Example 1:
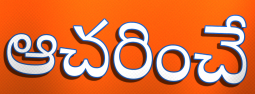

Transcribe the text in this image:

ఆచరించే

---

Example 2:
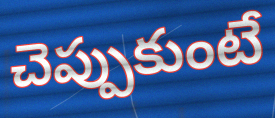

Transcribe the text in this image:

చెప్పుకుంటే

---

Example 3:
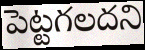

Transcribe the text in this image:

పెట్టగలదని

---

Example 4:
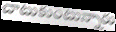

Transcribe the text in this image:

చాటుకుంటున్నారు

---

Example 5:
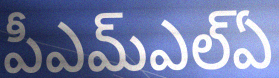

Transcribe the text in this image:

పీఎమ్ఎల్ఏ